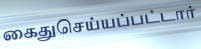
கைதுசெய்யப்பட்டார்